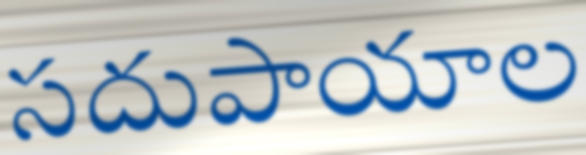
సదుపాయాల